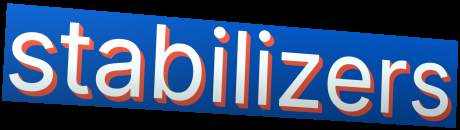
stabilizers